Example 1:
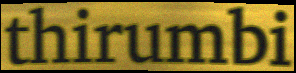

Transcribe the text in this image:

thirumbi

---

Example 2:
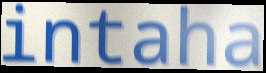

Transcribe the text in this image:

intaha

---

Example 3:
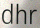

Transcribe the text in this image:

dhr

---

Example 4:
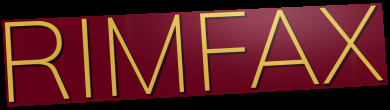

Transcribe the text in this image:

RIMFAX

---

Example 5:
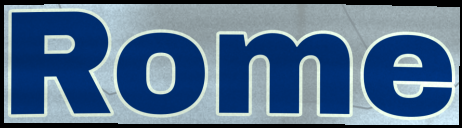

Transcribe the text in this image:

Rome